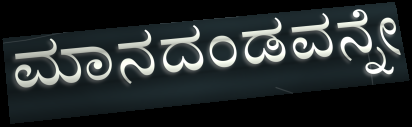
ಮಾನದಂಡವನ್ನೇ